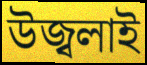
উজ্বলাই